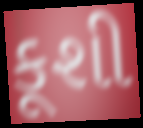
કૂશી